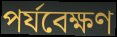
পৰ্যবেক্ষণ